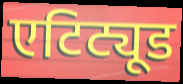
एटिट्यूड